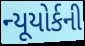
ન્યૂયોર્કની